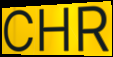
CHR